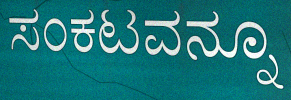
ಸಂಕಟವನ್ನೂ